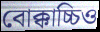
বোক্কাচ্চিও